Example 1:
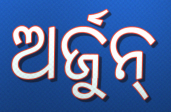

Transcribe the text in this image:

ଅର୍ଜୁନ୍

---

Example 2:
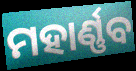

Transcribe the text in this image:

ମହାର୍ଣ୍ଣବ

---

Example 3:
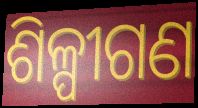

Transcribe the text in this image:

ଶିଳ୍ପୀଗଣ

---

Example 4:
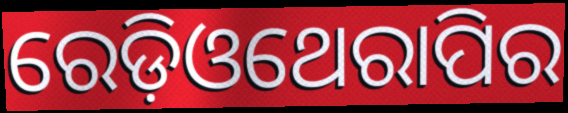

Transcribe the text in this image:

ରେଡ଼ିଓଥେରାପିର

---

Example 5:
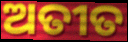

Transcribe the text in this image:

ଅତୀତ